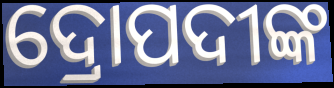
ଦ୍ରୋପଦୀଙ୍କ